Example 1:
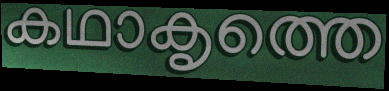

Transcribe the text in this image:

കഥാകൃത്തെ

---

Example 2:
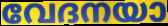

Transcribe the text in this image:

വേദനയാ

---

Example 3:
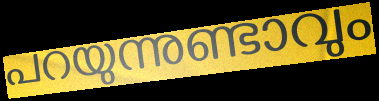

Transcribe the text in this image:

പറയുന്നുണ്ടാവും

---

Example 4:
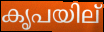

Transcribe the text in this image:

കൃപയില്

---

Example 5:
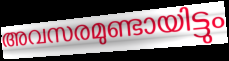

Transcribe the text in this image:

അവസരമുണ്ടായിട്ടും